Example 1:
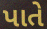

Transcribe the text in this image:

પાતે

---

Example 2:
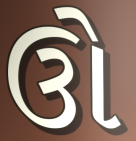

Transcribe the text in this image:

ઉો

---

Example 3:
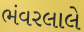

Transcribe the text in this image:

ભંવરલાલે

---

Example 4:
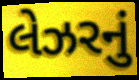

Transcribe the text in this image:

લેઝરનું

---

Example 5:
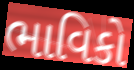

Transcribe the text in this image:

ભાવિકો